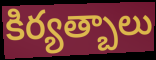
కిర్యత్బాలు